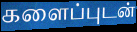
களைப்புடன்